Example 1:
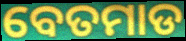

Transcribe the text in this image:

ବେତମାଡ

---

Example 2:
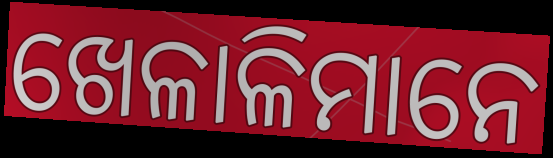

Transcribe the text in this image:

ଖେଳାଳିମାନେ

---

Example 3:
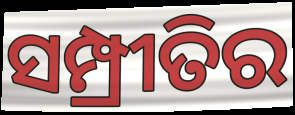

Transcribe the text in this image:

ସମ୍ପ୍ରୀତିର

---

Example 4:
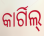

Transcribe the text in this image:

କାର୍ଗିଲ୍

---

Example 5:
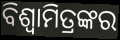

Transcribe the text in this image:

ବିଶ୍ୱାମିତ୍ରଙ୍କର